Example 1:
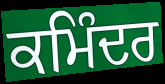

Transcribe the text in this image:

ਕਮਿੰਦਰ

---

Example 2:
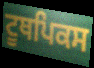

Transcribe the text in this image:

ਟੂਥਪਿਕਸ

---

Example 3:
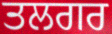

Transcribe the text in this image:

ਤਲਗਰ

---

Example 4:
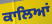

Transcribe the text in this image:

ਕਾਲਿਆਂ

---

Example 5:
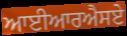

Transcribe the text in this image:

ਆਈਆਰਐਸਏ